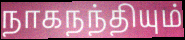
நாகநந்தியும்